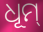
ଧୂମ୍